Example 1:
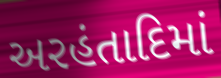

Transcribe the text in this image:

અરહંતાદિમાં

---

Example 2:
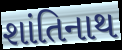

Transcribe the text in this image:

શાંતિનાથ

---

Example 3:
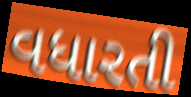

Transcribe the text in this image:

વધારતી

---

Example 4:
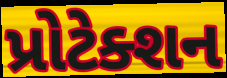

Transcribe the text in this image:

પ્રોટેક્શન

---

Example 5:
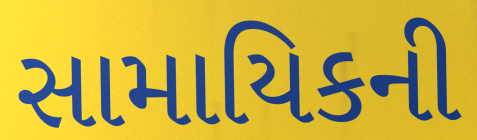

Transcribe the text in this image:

સામાયિકની